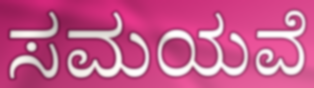
ಸಮಯವೆ